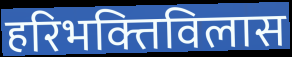
हरिभक्तिविलास